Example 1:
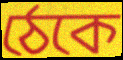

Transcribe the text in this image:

ঠেকে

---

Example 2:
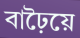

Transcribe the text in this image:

বাঢ়ৈয়ে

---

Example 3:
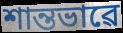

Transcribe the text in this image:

শান্তভাৱে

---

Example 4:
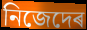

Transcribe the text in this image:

নিজেদেৰ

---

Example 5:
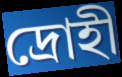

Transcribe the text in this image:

দ্ৰোহী